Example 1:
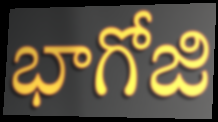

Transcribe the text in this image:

భాగోజి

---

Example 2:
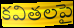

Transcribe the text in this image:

కవితలపై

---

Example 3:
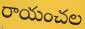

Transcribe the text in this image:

రాయంచల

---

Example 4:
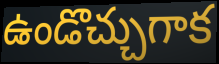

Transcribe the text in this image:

ఉండొచ్చుగాక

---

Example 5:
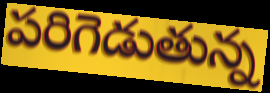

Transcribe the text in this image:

పరిగెడుతున్న